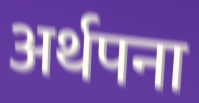
अर्थपना